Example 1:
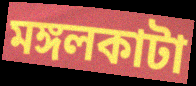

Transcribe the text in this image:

মঙ্গলকাটা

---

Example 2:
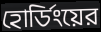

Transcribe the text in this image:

হোর্ডিংয়ের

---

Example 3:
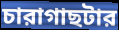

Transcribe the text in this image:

চারাগাছটার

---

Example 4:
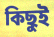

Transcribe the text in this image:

কিছুই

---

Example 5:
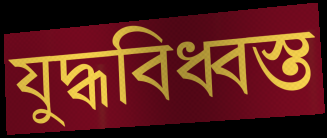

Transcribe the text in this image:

যুদ্ধবিধ্বস্ত